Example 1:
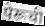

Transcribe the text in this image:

पेरूची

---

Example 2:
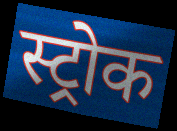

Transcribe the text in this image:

स्ट्रोक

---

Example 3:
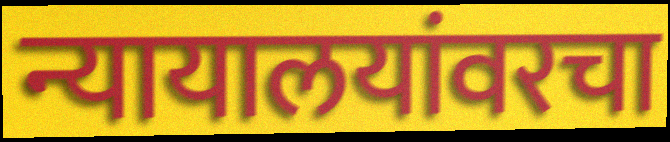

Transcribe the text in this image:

न्यायालयांवरचा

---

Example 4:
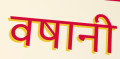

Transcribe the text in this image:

वषानी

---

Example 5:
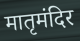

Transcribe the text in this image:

मातृमंदिर